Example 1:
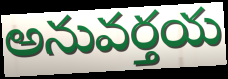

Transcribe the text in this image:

అనువర్తయ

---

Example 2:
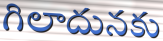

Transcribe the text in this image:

గిలాదునకు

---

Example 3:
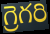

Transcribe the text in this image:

గ్రెగరి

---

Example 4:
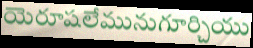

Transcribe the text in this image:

యెరూషలేమునుగూర్చియు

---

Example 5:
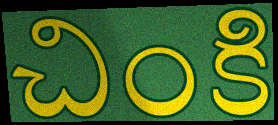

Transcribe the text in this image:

చింకి